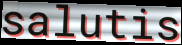
salutis